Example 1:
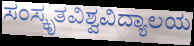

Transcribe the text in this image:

ಸಂಸ್ಕೃತವಿಶ್ವವಿದ್ಯಾಲಯ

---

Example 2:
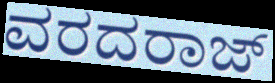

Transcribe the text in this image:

ವರದರಾಜ್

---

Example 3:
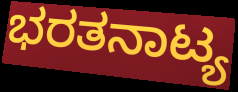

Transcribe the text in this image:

ಭರತನಾಟ್ಯ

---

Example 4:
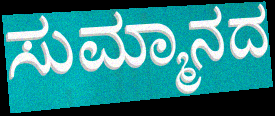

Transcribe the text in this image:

ಸುಮ್ಮಾನದ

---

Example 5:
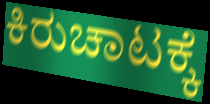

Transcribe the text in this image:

ಕಿರುಚಾಟಕ್ಕೆ